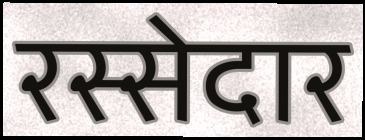
रस्सेदार